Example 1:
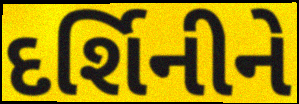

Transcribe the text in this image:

દર્શિનીને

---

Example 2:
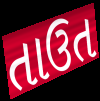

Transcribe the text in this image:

તાઉત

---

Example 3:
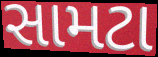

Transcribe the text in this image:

સામટા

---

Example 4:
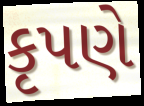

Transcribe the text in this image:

કૃપણે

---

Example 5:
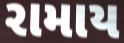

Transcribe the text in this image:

રામાય